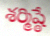
శర్మిష్ఠే